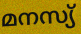
മനസ്യ്